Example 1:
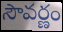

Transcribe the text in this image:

సౌవర్ణం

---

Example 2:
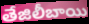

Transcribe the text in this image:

తేజిలీబాయి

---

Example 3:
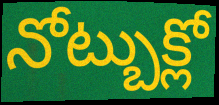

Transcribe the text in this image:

నోట్బుక్లో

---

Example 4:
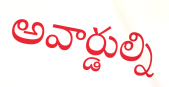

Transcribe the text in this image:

అవార్డుల్ని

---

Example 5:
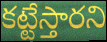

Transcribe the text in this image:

కట్టేస్తారని